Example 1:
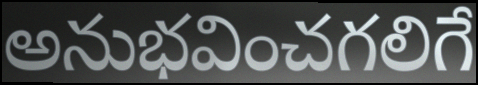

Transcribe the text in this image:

అనుభవించగలిగే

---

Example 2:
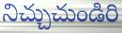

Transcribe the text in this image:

నిచ్చుచుండిరి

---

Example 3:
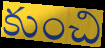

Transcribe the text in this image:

కుంచి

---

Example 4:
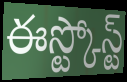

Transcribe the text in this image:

ఈస్ట్కోస్ట్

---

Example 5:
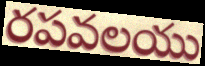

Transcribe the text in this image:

రపవలయు